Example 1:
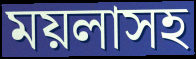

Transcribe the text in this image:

ময়লাসহ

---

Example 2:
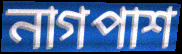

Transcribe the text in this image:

নাগপাশ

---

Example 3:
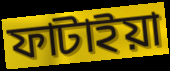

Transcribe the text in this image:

ফাটাইয়া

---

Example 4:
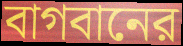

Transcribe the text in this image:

বাগবানের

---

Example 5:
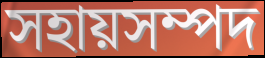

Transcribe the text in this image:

সহায়সম্পদ